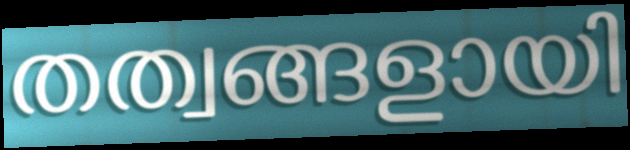
തത്വങ്ങളായി